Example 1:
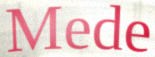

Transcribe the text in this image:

Mede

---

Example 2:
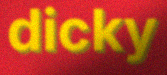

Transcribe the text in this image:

dicky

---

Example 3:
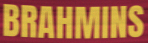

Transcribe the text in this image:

BRAHMINS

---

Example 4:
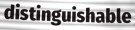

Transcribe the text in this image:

distinguishable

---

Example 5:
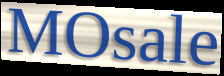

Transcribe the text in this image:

MOsale